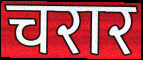
चरार